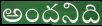
అందనిది